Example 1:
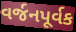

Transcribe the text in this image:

વર્જનપૂર્વક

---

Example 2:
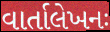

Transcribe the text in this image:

વાર્તાલેખનઃ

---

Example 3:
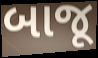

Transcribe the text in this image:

બાજૂ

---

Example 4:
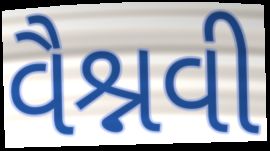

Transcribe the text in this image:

વૈશ્નવી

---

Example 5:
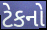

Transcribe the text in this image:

ટેકનો